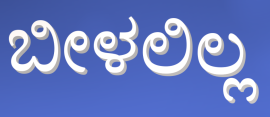
ಬೀಳಲಿಲ್ಲ